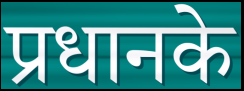
प्रधानके